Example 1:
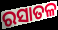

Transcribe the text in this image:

ରସାତଳ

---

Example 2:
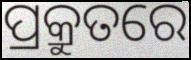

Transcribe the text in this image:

ପ୍ରକ୍ରୁତରେ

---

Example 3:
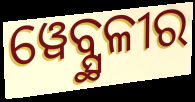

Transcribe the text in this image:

ୱେବ୍ସ୍ଥଳୀର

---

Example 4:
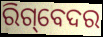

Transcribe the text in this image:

ରିଗ୍‌ବେଦର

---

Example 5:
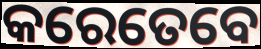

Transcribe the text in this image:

କରେତେବେ